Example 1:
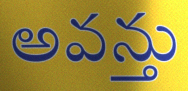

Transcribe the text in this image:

అవన్తు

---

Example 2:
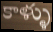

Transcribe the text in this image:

కాళ్ళు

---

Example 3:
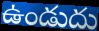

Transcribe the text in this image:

ఉండుదు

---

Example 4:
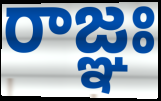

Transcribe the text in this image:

రాజ్ఞః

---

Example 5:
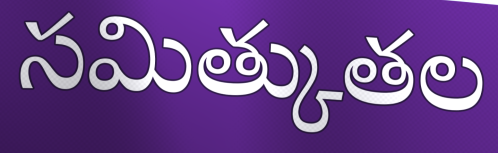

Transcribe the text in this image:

సమిత్కుతల